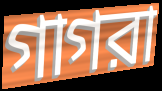
গাগরা